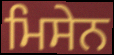
ਮਿਸੇਨ